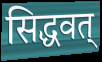
सिद्धवत्